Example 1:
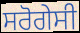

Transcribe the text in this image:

ਸਰੋਗੇਸੀ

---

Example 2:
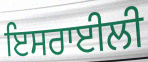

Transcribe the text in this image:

ਇਸਰਾਈਲੀ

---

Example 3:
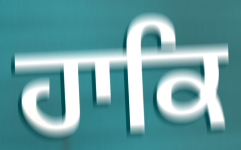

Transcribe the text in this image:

ਹਾਕਿ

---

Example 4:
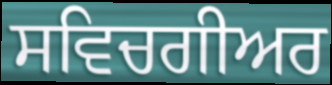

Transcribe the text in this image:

ਸਵਿਚਗੀਅਰ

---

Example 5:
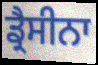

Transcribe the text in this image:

ਡ੍ਰੈਸੀਨਾ